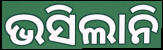
ଭସିଲାନି